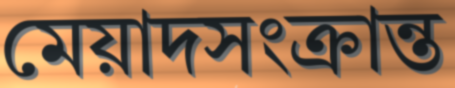
মেয়াদসংক্রান্ত